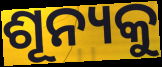
ଶୂନ୍ୟକୁ